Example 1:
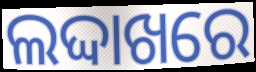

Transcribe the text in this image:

ଲଦ୍ଦାଖରେ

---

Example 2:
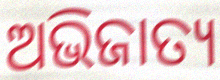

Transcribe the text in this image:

ଅଭିଜାତ୍ୟ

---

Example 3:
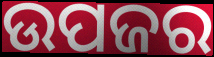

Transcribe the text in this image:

ଉପଜର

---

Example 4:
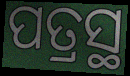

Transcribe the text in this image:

ପତ୍ରସ୍ଥ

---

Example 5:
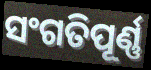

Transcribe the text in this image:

ସଂଗତିପୂର୍ଣ୍ଣ